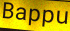
Bappu